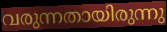
വരുന്നതായിരുന്നു